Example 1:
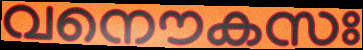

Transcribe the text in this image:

വനൌകസഃ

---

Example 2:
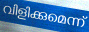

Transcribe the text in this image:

വിളിക്കുമെന്ന്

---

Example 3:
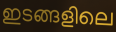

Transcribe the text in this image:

ഇടങ്ങളിലെ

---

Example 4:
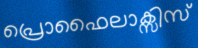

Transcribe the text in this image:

പ്രൊഫൈലാക്സിസ്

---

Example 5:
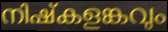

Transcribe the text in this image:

നിഷ്‌കളങ്കവും